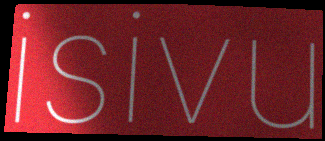
isivu